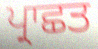
ਪ੍ਰਾਛਤ